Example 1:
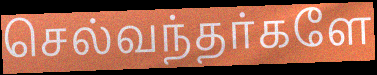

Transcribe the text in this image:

செல்வந்தர்களே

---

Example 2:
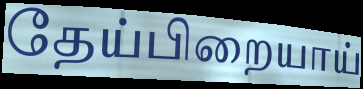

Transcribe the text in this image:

தேய்பிறையாய்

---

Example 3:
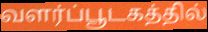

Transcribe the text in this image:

வளர்ப்பூடகத்தில்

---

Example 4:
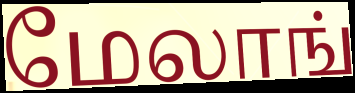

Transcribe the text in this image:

மேலாங்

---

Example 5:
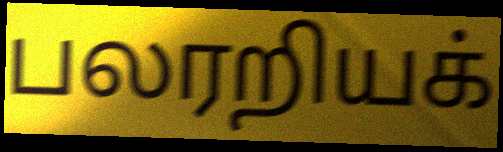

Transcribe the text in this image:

பலரறியக்